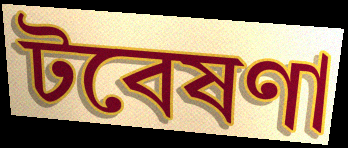
টবেষণা